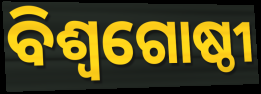
ବିଶ୍ୱଗୋଷ୍ଠୀ